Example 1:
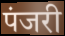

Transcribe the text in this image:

पंजरी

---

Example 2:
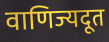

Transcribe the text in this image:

वाणिज्यदूत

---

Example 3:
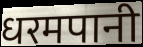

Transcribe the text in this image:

धरमपानी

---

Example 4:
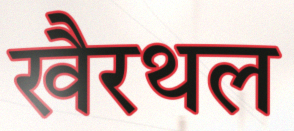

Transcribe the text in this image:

खैरथल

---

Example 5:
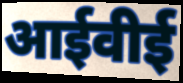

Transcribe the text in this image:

आईवीई